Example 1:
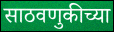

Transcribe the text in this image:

साठवणुकीच्या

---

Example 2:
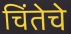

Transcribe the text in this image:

चिंतेचे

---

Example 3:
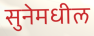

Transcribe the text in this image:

सुनेमधील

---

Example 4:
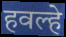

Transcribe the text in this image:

हवल्हे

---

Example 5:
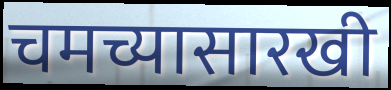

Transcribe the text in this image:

चमच्यासारखी